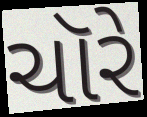
ચૉરે